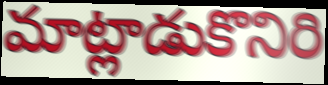
మాట్లాడుకొనిరి